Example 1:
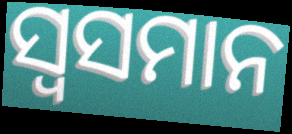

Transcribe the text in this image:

ସ୍ୱସମାନ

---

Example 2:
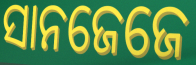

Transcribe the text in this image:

ସାନଜେଜେ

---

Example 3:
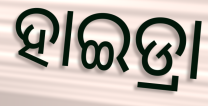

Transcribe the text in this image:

ହାଇଡ୍ରା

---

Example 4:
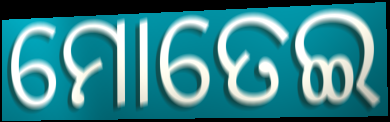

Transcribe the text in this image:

ମୋତେଇ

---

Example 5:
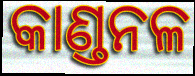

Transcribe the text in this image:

କାଣ୍ଡନଳ